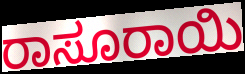
ರಾಸೂರಾಯಿ